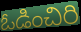
ఓడించిరి